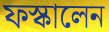
ফস্কালেন